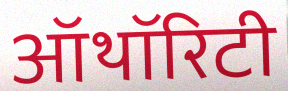
ऑथॉरिटी